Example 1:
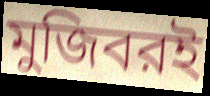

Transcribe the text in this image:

মুজিবরই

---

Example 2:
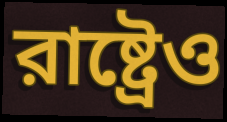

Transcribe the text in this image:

রাষ্ট্রেও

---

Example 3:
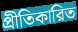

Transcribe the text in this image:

প্রীতিকারিত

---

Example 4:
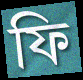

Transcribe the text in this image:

ফি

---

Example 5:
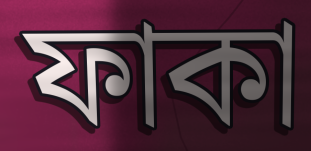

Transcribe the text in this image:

ফাকা